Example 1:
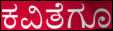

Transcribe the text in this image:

ಕವಿತೆಗೂ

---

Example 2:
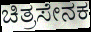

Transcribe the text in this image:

ಚಿತ್ರಸೇನಕ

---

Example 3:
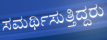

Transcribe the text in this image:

ಸಮರ್ಥಿಸುತ್ತಿದ್ದರು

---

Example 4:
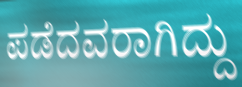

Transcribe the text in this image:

ಪಡೆದವರಾಗಿದ್ದು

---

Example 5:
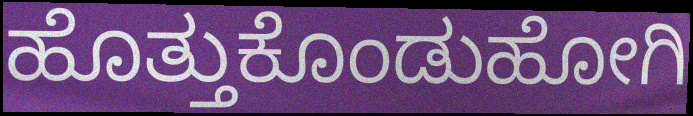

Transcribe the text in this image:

ಹೊತ್ತುಕೊಂಡುಹೋಗಿ